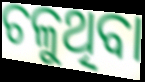
ଚଳୁଥିବା